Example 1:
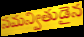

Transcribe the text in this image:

సమన్వితుడైన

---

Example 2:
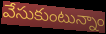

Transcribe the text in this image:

వేసుకుంటున్నాం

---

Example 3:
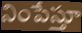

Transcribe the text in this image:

నింపేస్తూ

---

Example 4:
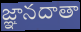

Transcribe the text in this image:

జ్ఞానదాతా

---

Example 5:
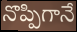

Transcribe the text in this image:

నొప్పిగానే